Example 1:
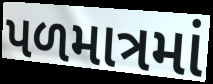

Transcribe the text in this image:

પળમાત્રમાં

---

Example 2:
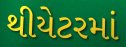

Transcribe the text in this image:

થીયેટરમાં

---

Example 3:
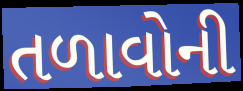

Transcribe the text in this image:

તળાવોની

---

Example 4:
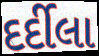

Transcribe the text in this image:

દર્દીલા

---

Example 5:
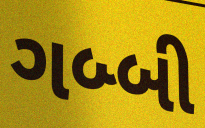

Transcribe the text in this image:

ગબ્બી